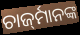
ଚାର୍ଜ୍‍ମାନଙ୍କ